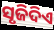
ସୃଜିଦିଏ